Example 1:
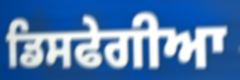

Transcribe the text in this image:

ਡਿਸਫੇਗੀਆ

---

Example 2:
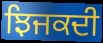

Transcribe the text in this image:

ਝਿਜਕਦੀ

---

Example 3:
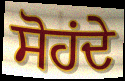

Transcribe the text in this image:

ਸੋਹਂਦੇ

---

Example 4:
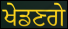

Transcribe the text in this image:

ਖੇਡਣਗੇ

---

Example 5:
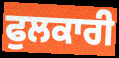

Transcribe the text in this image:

ਫੁਲਕਾਰੀ